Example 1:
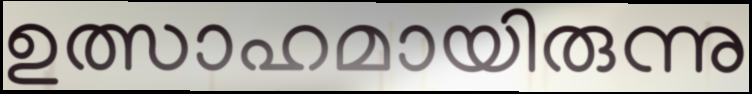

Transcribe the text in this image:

ഉത്സാഹമായിരുന്നു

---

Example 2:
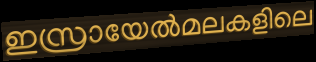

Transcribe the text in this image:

ഇസ്രായേൽമലകളിലെ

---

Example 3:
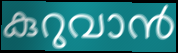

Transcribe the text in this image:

കുറുവാൻ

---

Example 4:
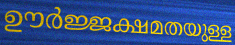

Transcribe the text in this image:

ഊർജ്ജക്ഷമതയുള്ള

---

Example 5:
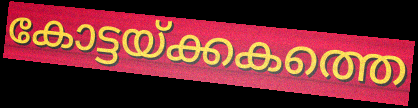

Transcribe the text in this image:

കോട്ടയ്ക്കകത്തെ